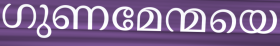
ഗുണമേന്മയെ